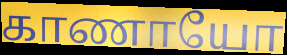
காணாயோ